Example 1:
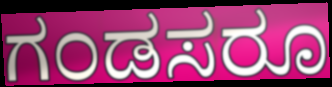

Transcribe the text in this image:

ಗಂಡಸರೂ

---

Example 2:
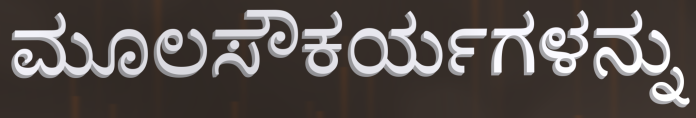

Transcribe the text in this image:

ಮೂಲಸೌಕರ್ಯಗಳನ್ನು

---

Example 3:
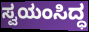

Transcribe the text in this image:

ಸ್ವಯಂಸಿದ್ಧ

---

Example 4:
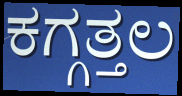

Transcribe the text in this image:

ಕಗ್ಗತ್ತಲ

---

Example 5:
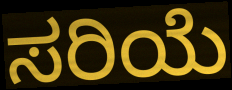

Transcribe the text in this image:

ಸರಿಯೆ